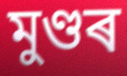
মুণ্ডৰ